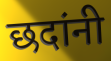
छदांनी